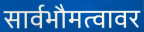
सार्वभौमत्वावर